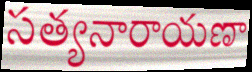
సత్యనారాయణా